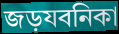
জড়যবনিকা